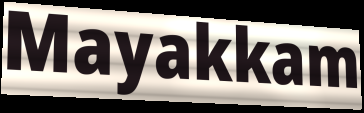
Mayakkam